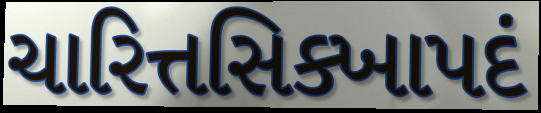
ચારિત્તસિક્ખાપદં